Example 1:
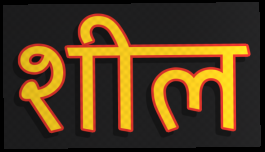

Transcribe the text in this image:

शील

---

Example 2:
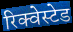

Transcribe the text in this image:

रिक्वेस्टेड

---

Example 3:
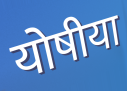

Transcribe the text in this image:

योषीया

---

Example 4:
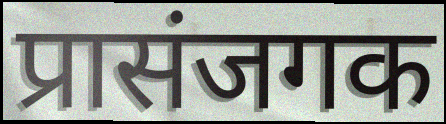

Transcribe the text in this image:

प्रासंजगक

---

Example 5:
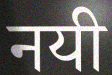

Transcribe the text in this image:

नयी